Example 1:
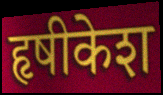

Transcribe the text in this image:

हृषीकेश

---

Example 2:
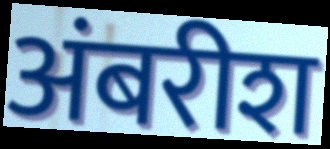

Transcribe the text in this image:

अंबरीश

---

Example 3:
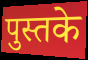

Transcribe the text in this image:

पुस्तके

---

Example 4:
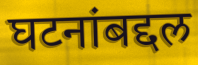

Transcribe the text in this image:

घटनांबद्दल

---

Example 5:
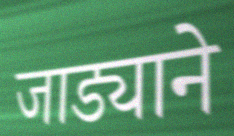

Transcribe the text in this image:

जाड्याने